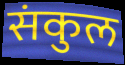
संकुल